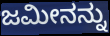
ಜಮೀನನ್ನು